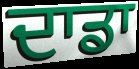
ਦਾਡਾ